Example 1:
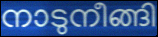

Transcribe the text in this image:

നാടുനീങ്ങി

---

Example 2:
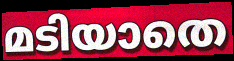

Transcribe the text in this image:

മടിയാതെ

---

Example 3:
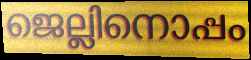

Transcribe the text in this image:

ജെല്ലിനൊപ്പം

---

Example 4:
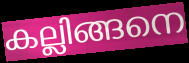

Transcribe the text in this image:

കല്ലിങ്ങനെ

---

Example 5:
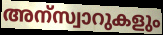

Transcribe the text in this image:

അന്സ്വാറുകളും